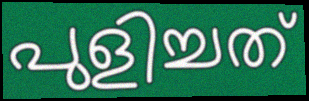
പുളിച്ചത്